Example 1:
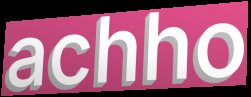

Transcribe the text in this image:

achho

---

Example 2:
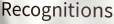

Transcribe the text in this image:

Recognitions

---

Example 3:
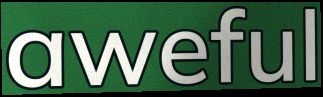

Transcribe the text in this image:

aweful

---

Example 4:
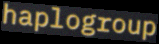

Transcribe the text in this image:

haplogroup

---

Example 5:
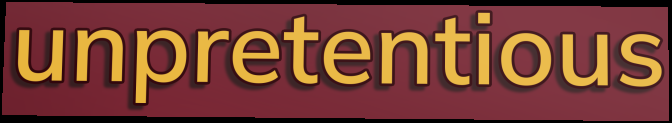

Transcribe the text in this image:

unpretentious